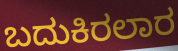
ಬದುಕಿರಲಾರ